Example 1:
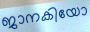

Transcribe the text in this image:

ജാനകിയോ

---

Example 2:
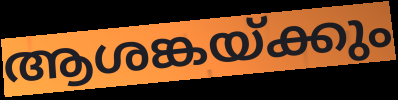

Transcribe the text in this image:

ആശങ്കയ്ക്കും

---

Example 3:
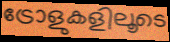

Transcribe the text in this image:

ട്രോളുകളിലൂടെ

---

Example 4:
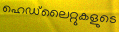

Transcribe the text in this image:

ഹെഡ്‌ലൈറ്റുകളുടെ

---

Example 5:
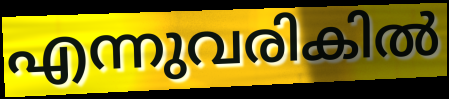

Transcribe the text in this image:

എന്നുവരികിൽ